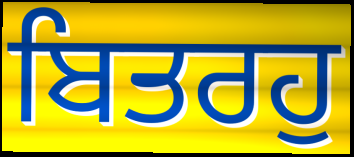
ਬਿਤਰਹੁ